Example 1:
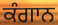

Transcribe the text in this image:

ਕੰਗਾਨ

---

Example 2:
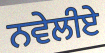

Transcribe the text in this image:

ਨਵੇਲੀਏ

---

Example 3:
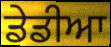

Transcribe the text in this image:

ਡੇਡੀਆ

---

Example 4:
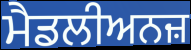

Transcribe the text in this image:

ਮੈਡਲੀਅਨਜ਼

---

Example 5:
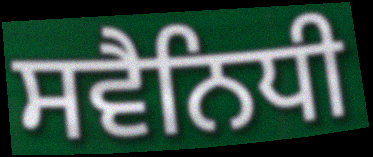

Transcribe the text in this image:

ਸਵੈਨਿਧੀ